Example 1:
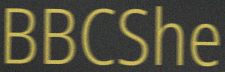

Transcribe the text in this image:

BBCShe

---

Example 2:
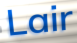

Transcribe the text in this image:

Lair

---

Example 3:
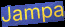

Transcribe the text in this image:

Jampa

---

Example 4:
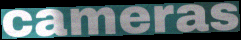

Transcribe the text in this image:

cameras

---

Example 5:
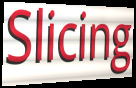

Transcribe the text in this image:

Slicing